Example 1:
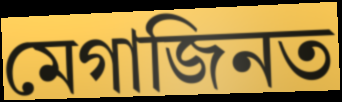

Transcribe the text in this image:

মেগাজিনত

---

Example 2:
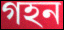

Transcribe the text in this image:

গহন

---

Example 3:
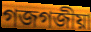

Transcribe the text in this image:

গজগজীয়া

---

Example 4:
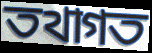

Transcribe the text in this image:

তথাগত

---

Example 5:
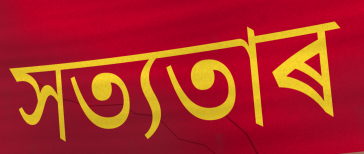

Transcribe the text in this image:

সত্যতাৰ